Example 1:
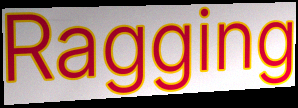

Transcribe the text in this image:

Ragging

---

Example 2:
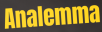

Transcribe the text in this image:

Analemma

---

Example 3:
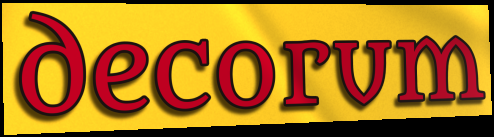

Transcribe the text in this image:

decorum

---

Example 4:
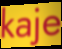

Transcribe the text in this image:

kaje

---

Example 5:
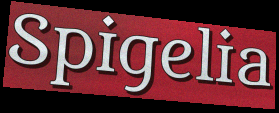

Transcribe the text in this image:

Spigelia